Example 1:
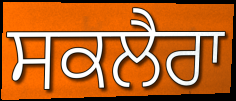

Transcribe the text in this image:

ਸਕਲੈਰਾ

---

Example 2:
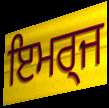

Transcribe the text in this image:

ਇਮਰ੍ਜ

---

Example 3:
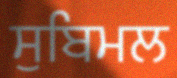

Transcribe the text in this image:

ਸੁਬਿਮਲ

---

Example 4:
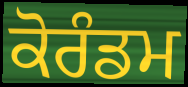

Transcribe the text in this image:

ਕੋਰੰਡਮ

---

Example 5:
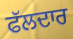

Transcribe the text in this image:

ਫੱਲਦਾਰ